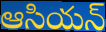
ఆసియన్